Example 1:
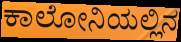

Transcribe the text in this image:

ಕಾಲೋನಿಯಲ್ಲಿನ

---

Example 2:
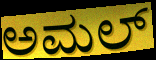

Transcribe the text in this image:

ಅಮಲ್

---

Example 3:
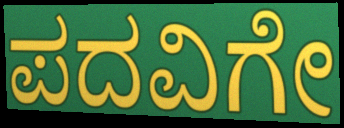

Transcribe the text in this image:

ಪದವಿಗೇ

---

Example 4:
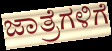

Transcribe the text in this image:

ಜಾತ್ರೆಗಳಿಗೆ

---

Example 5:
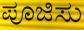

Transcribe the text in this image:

ಪೂಜಿಸು